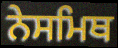
ਨੇਸਮਿਥ